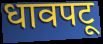
धावपटू